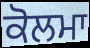
ਕੋਲਮਾ